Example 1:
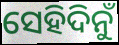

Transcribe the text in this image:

ସେହିଦିନୁଁ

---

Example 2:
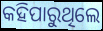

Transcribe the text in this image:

କହିପାରୁଥିଲେ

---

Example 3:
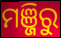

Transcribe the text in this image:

ମଞ୍ଜିରୁ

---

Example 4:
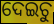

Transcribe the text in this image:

ଦେଇଚୁ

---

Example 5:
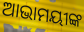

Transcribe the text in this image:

ଆଭାମୟୀଙ୍କ